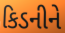
કિડનીને